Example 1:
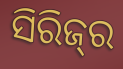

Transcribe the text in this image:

ସିରିଜ୍‌ର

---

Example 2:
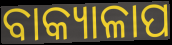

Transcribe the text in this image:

ବାକ୍ୟାଳାପ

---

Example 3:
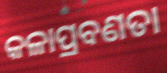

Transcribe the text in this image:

କଳାପ୍ରବଣତା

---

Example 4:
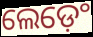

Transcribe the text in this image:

ଲେଡ଼େଂ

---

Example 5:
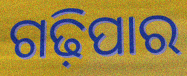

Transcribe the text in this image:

ଗଢ଼ିପାର